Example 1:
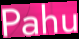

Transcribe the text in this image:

Pahu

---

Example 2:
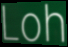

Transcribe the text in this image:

Loh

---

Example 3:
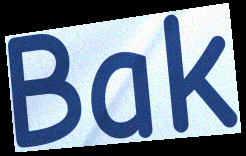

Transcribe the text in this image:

Bak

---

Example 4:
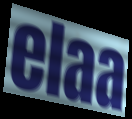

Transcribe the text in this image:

elaa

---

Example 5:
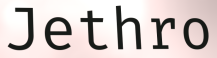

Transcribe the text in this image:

Jethro